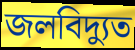
জলবিদ্যুত